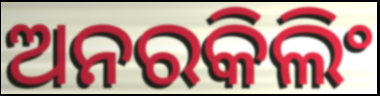
ଅନରକିଲିଂ